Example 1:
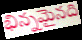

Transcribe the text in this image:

భిన్నమైనది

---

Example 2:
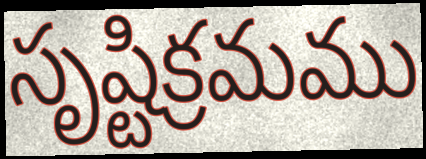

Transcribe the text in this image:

సృష్టిక్రమము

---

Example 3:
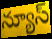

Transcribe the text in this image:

న్యూస్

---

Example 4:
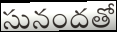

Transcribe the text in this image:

సునందతో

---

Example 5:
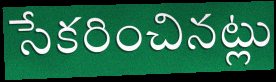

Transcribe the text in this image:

సేకరించినట్లు